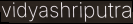
vidyashriputra